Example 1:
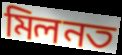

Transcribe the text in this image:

মিলনত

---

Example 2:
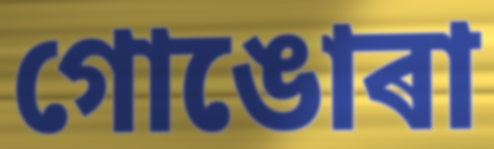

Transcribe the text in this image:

গোঙোৰা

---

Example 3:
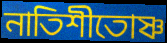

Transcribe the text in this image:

নাতিশীতোষ্ণ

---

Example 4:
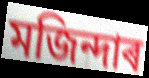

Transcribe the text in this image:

মজিন্দাৰ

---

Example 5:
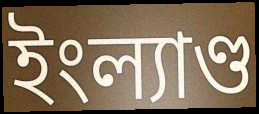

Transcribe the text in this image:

ইংল্যাণ্ড